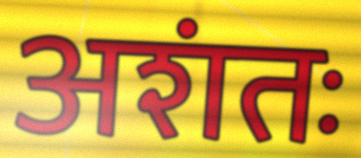
अशंतः